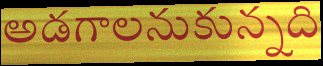
అడగాలనుకున్నది